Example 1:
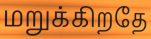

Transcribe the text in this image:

மறுக்கிறதே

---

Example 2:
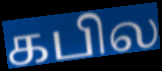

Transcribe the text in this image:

கபில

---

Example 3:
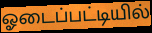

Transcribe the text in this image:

ஓடைப்பட்டியில்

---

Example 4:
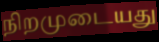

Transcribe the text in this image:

நிறமுடையது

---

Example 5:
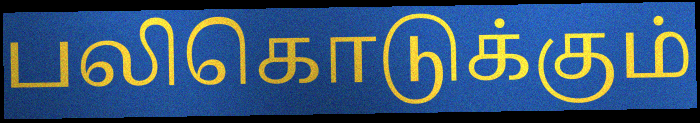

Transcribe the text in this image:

பலிகொடுக்கும்